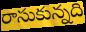
రాసుకున్నది